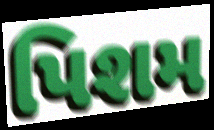
પિશમ